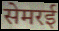
सेमरई